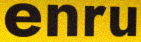
enru